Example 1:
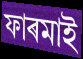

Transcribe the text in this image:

ফাৰমাই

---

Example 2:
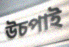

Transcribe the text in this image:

উচপাই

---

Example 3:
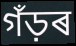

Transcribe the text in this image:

গঁড়ৰ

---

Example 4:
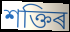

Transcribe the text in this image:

শক্তিৰ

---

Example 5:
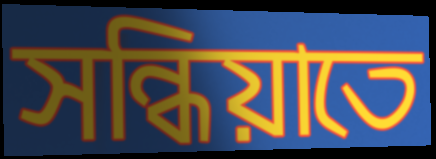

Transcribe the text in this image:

সন্ধিয়াতে